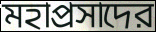
মহাপ্রসাদের